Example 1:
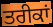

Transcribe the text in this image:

ਤਰੀਕਾਂ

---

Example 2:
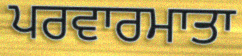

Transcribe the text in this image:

ਪਰਵਾਰਮਾਤਾ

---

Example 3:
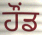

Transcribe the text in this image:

ਹੌਂਡ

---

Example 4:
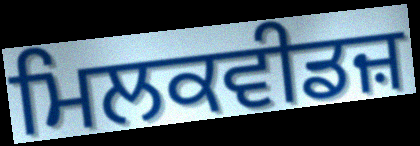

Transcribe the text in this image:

ਮਿਲਕਵੀਡਜ਼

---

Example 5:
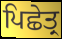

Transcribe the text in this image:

ਪਿਛੇਤ੍ਰ